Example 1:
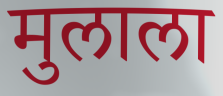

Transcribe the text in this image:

मुलाला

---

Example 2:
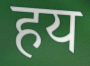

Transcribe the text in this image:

हय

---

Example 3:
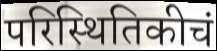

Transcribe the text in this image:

परिस्थितिकीचं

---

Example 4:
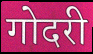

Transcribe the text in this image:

गोदरी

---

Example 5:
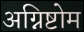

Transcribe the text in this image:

अग्निष्टोम